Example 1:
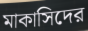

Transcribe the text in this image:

মাকাসিদের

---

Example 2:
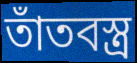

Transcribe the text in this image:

তাঁতবস্ত্র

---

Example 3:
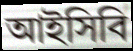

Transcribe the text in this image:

আইসিবি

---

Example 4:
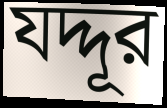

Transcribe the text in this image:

যদ্দূর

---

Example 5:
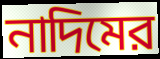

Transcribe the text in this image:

নাদিমের